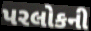
પરલોકની